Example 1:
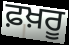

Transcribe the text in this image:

ਫ਼ਖ਼ਰੂ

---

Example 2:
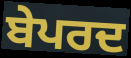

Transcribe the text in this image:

ਬੇਪਰਦ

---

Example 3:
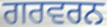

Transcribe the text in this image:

ਗਰਵਰਨ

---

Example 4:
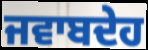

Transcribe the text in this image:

ਜਵਾਬਦੇਹ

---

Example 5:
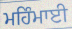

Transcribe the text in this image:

ਮਹਿੰਮਾਈ